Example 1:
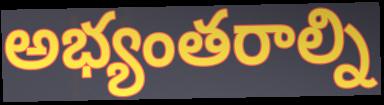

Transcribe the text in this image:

అభ్యంతరాల్ని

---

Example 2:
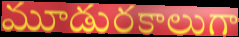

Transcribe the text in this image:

మూడురకాలుగా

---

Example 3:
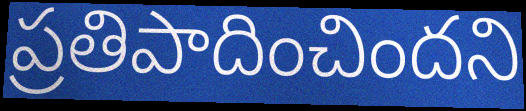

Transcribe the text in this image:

ప్రతిపాదించిందని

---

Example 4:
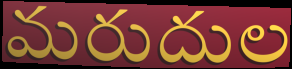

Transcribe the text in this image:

మరుదుల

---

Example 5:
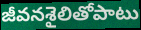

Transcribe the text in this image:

జీవనశైలితోపాటు